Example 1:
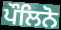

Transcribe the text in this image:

ਪੌਲਿਨੋ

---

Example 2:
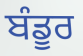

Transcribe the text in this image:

ਬੰਡੂਰ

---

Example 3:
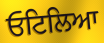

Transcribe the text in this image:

ਓਟਿਲਿਆ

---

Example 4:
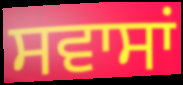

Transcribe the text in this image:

ਸਵਾਸਾਂ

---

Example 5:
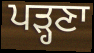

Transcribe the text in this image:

ਪੜ੍ਹਣਾ